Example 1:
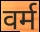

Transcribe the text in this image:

वर्म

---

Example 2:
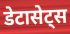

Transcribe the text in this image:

डेटासेट्स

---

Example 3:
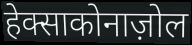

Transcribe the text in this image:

हेक्साकोनाज़ोल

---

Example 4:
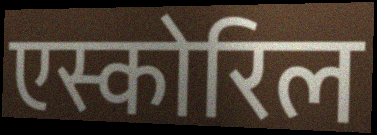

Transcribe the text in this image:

एस्कोरिल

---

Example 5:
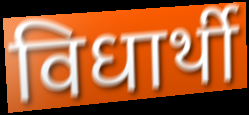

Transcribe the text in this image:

विधार्थी